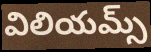
విలియమ్స్